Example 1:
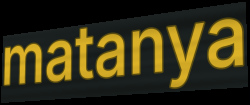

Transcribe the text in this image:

matanya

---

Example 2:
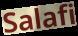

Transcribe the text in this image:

Salafi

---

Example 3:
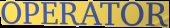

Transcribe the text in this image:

OPERATOR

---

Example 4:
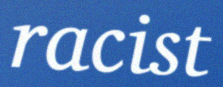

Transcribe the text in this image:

racist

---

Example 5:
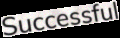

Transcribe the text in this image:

Successful